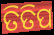
ତିତିପ